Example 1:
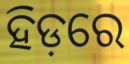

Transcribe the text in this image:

ହିଡ଼ରେ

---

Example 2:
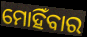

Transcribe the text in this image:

ମୋହିଁବାର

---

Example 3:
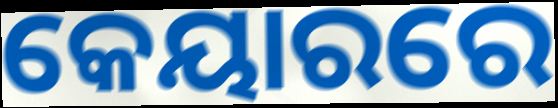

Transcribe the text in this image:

କେୟାରରେ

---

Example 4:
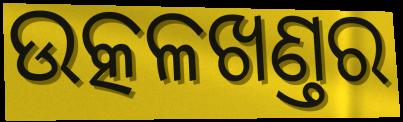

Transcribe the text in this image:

ଉତ୍କଳଖଣ୍ତର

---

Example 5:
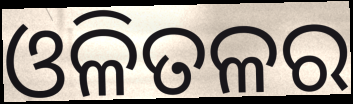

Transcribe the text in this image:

ଓଳିତଳର